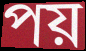
পয়